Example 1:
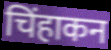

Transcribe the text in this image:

चिंहाकन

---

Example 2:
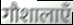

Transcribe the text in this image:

गौशालाएँ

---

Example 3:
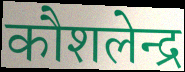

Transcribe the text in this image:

कौशलेन्द्र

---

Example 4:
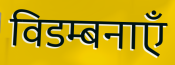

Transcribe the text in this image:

विडम्बनाएँ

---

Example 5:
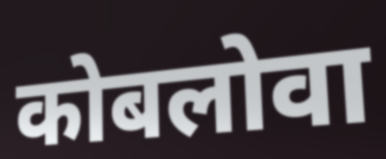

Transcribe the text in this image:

कोबलोवा